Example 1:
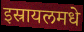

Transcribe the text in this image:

इस्रायलमधे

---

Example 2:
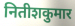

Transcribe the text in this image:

नितीशकुमार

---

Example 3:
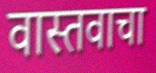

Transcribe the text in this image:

वास्तवाचा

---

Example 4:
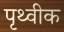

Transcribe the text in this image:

पृथ्वीक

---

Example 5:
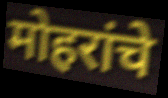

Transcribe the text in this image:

मोहरांचे